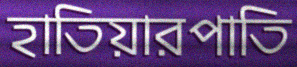
হাতিয়ারপাতি